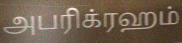
அபரிக்ரஹம்